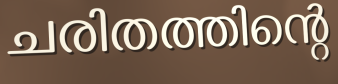
ചരിതത്തിന്റെ